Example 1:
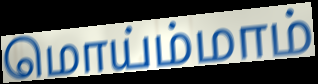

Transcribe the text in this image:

மொய்ம்மாம்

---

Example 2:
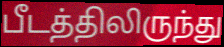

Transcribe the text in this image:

பீடத்திலிருந்து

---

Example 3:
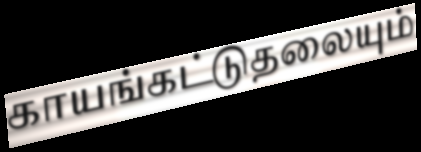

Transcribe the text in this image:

காயங்கட்டுதலையும்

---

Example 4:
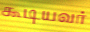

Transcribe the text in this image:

கூடியவர்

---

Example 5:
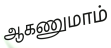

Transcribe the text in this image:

ஆகணுமாம்